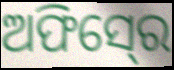
ଅଫିସ୍‍ରେ